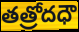
తత్రోదధౌ